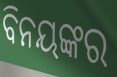
ବିନୟଙ୍କର